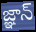
జ్ఞాన్